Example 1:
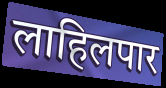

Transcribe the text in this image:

लाहिलपार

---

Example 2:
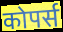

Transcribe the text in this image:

कोपर्स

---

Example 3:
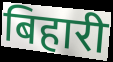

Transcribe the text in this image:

बिहारी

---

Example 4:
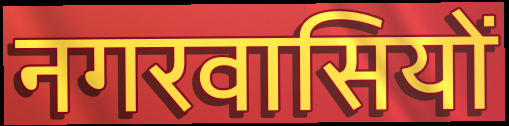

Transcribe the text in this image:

नगरवासियों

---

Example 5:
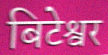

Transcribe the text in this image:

बिटेश्वर